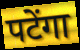
पटेंगा